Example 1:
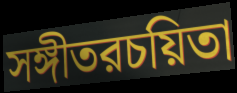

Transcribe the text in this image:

সঙ্গীতরচয়িতা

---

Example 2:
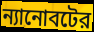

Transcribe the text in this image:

ন্যানোবটের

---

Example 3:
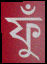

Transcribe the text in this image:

ফুঁ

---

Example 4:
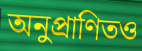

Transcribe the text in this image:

অনুপ্রাণিতও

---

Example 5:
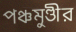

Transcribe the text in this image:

পঞ্চমুণ্ডীর